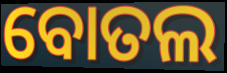
ବୋତଲ